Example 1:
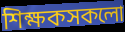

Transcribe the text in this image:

শিক্ষকসকলো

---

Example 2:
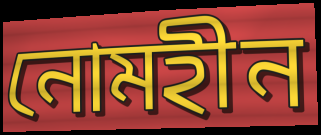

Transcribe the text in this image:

নোমহীন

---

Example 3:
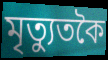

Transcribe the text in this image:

মৃত্যুতকৈ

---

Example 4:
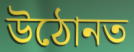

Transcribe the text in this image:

উঠোনত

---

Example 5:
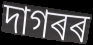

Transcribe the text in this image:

দাগৰৰ